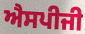
ਐਸਪੀਜੀ